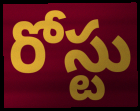
రోస్టు